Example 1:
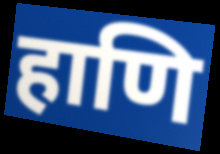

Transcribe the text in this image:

हाणि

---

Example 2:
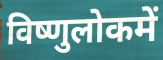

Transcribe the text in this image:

विष्णुलोकमें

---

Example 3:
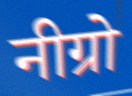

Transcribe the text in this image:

नीग्रो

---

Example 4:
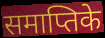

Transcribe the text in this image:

समाप्तिके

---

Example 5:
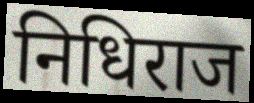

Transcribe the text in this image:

निधिराज